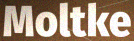
Moltke